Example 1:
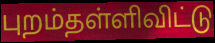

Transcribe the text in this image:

புறம்தள்ளிவிட்டு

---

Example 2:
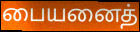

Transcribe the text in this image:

பையனைத்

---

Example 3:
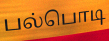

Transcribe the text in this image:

பல்பொடி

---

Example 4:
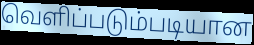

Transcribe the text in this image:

வெளிப்படும்படியான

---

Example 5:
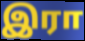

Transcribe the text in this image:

இரா